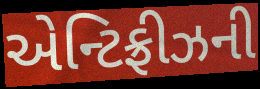
એન્ટિફ્રીઝની